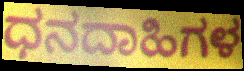
ಧನದಾಹಿಗಳ